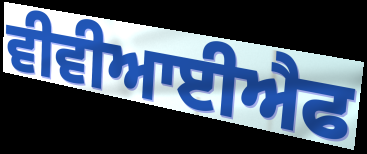
ਵੀਵੀਆਈਐਫ